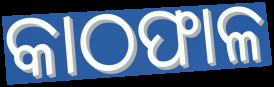
କାଠଫାଳ